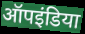
ऑपइंडिया